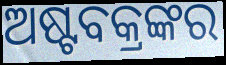
ଅଷ୍ଟବକ୍ରଙ୍କର